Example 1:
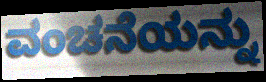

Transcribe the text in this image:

ವಂಚನೆಯನ್ನು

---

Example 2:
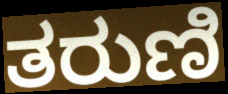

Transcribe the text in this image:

ತರುಣಿ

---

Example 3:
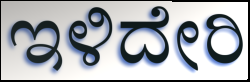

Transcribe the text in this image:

ಇಳಿದೇರಿ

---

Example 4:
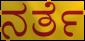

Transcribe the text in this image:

ನರ್ತೆ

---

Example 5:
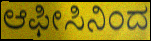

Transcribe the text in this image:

ಆಫೀಸಿನಿಂದ